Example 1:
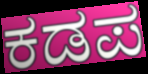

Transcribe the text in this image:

ಕಡಪ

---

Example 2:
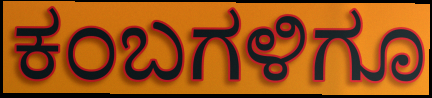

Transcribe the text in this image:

ಕಂಬಗಳಿಗೂ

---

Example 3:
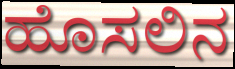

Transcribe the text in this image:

ಹೊಸಲಿನ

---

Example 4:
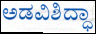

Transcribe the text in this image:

ಅಡವಿಶಿದ್ಧಾ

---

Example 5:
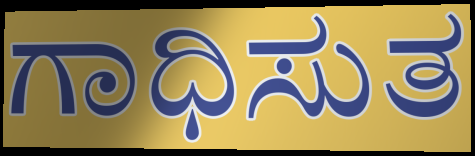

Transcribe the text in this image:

ಗಾಧಿಸುತ